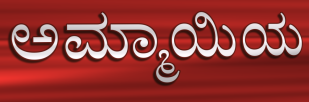
ಅಮ್ಮಾಯಿಯ